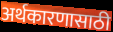
अर्थकारणासाठी